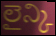
లైన్కి